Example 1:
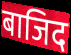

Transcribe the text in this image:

बाजिद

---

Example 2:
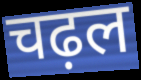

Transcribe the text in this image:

चढ़ल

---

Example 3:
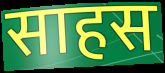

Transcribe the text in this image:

साहस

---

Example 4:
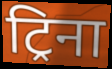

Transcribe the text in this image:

ट्रिना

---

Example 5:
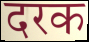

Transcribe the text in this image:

दरक